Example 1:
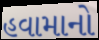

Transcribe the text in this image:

હવામાનો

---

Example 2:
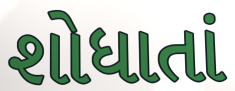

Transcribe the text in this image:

શોધાતાં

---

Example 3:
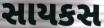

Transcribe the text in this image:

સાયકસ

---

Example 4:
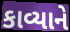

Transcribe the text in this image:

કાવ્યાને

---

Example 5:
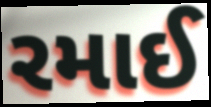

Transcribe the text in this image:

રમાઈ